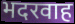
भदरवाह